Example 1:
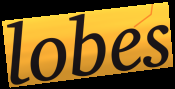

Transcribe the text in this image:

lobes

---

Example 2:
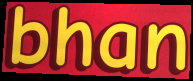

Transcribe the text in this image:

bhan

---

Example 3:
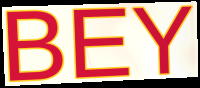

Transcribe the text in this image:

BEY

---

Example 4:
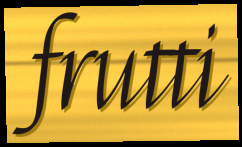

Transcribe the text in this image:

frutti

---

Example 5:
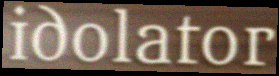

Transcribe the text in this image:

idolator